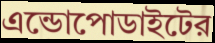
এন্ডোপোডাইটের